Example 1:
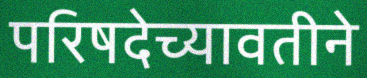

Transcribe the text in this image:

परिषदेच्यावतीने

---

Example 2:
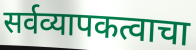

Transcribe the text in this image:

सर्वव्यापकत्वाचा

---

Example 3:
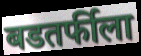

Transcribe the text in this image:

बडतर्फीला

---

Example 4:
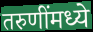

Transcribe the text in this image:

तरुणींमध्ये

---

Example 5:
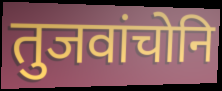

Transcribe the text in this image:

तुजवांचोनि